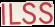
ILSS